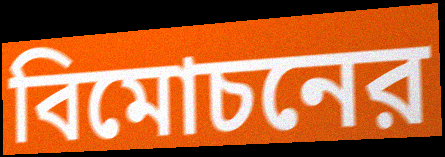
বিমোচনের